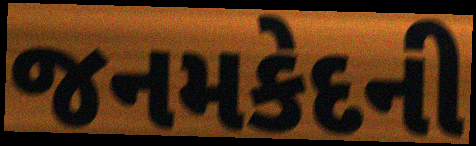
જનમકેદની